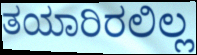
ತಯಾರಿರಲಿಲ್ಲ